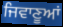
ਜਿਵਾਣੂਆਂ